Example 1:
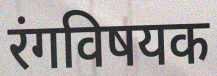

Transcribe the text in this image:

रंगविषयक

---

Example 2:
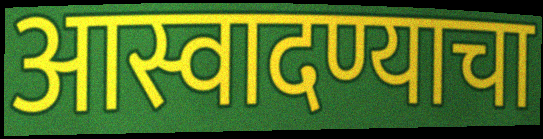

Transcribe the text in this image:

आस्वादण्याचा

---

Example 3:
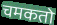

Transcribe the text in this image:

चमकतो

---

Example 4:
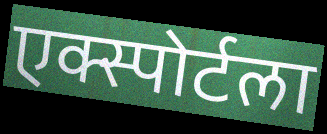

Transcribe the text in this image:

एक्स्पोर्टला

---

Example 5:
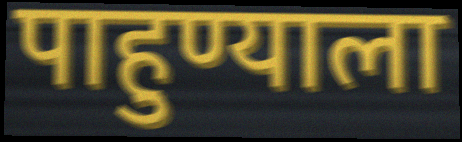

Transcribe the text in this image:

पाहुण्याला